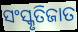
ସଂସ୍କୃତିଜାତ